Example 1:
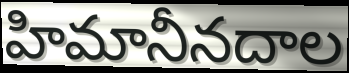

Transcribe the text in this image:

హిమానీనదాల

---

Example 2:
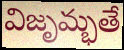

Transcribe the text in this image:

విజృమ్భతే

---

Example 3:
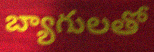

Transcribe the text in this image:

బ్యాగులతో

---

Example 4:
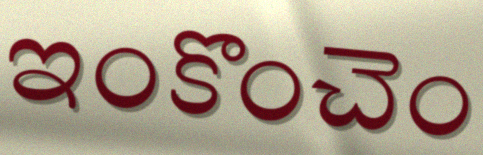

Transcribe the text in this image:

ఇంకొంచెం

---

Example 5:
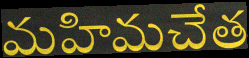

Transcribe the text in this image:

మహిమచేత